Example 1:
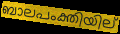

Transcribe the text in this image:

ബാലപംക്തിയില്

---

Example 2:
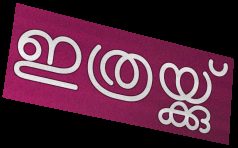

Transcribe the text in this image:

ഇത്രയ്ക്കു്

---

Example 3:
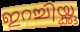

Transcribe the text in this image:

ഇറച്ചിയ്ക്കു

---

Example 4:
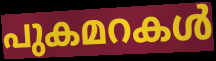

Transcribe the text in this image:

പുകമറകൾ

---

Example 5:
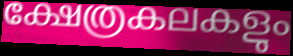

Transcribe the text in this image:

ക്ഷേത്രകലകളും